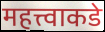
महत्त्वाकडे